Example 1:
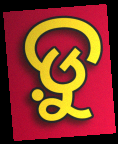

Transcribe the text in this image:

ଡ଼ୁ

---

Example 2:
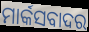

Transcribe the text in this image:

ମାର୍କସବାଦର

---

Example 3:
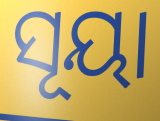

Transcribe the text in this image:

ସୂୟା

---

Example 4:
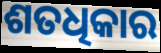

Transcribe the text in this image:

ଶତଧିକାର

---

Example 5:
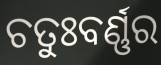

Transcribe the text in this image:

ଚତୁଃବର୍ଣ୍ଣର